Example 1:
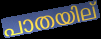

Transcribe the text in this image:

പാതയില്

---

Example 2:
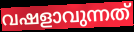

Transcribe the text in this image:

വഷളാവുന്നത്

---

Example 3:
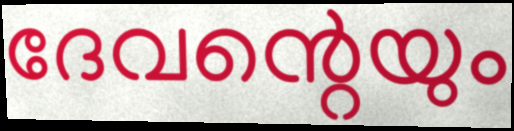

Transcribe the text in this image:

ദേവന്റെയും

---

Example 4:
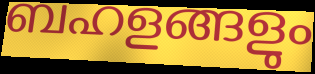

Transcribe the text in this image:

ബഹളങ്ങളും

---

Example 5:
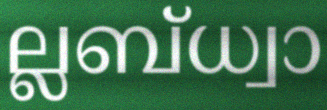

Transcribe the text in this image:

ല്ലബ്ധ്വാ